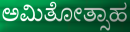
ಅಮಿತೋತ್ಸಾಹ